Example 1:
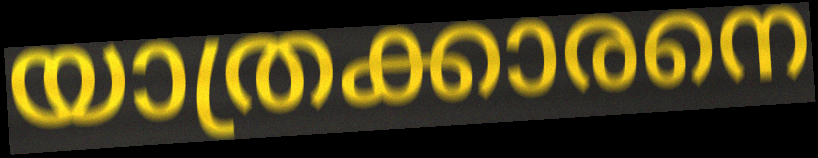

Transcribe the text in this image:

യാത്രക്കാരനെ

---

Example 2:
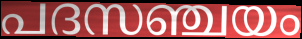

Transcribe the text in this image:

പദസഞ്ചയം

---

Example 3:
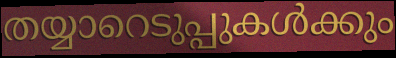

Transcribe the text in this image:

തയ്യാറെടുപ്പുകൾക്കും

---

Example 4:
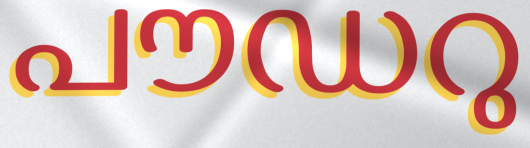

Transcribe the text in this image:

പൗഡറു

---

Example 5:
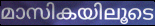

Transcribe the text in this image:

മാസികയിലൂടെ